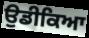
ਉਡੀਕਿਆ